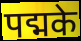
पद्मके